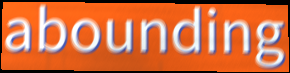
abounding